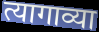
त्यागाव्या